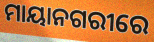
ମାୟାନଗରୀରେ